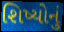
શિષ્યોનું